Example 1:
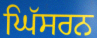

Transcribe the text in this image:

ਘਿੱਸਰਨ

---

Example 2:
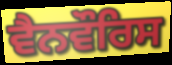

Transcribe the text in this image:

ਵੈਨਵੌਰਿਸ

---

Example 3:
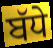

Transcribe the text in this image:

ਬੱਧੇ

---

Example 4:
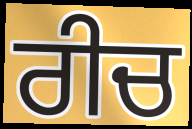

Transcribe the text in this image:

ਰੀਚ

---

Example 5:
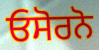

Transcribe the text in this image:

ਓਸੋਰਨੋ